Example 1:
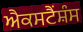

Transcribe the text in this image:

ਐਕਸਟੈਂਸ਼ੰਸ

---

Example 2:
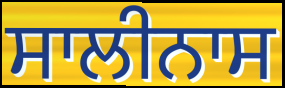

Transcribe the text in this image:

ਸਾਲੀਨਾਸ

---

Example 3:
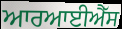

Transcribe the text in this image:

ਆਰਆਈਐੱਸ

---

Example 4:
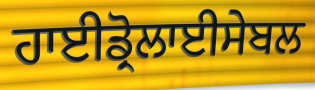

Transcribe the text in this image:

ਹਾਈਡ੍ਰੋਲਾਈਸੇਬਲ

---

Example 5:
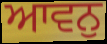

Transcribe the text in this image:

ਆਵਨੁ